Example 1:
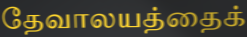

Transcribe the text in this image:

தேவாலயத்தைக்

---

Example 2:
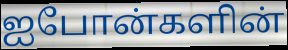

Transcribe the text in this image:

ஐபோன்களின்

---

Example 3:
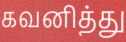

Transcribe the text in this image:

கவனித்து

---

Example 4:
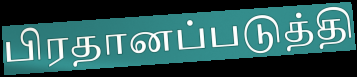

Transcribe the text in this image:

பிரதானப்படுத்தி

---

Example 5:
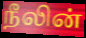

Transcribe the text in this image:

நீலின்